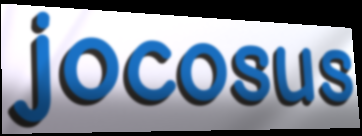
jocosus